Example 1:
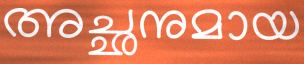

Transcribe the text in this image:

അച്ഛനുമായ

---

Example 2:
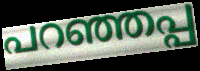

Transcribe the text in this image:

പറഞ്ഞപ്പ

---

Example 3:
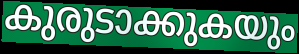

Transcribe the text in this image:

കുരുടാക്കുകയും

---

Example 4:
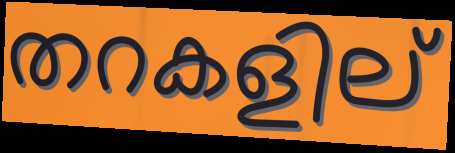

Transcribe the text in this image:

തറകളില്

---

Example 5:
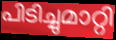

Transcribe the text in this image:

പിടിച്ചുമാറ്റി